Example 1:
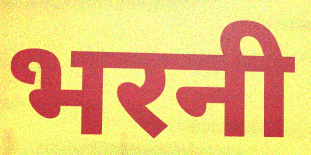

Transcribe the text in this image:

भरनी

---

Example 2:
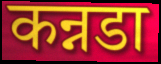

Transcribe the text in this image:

कन्नडा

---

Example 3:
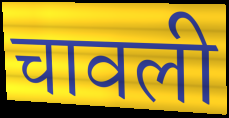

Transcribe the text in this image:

चावली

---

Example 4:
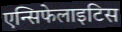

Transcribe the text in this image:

एन्सिफेलाइटिस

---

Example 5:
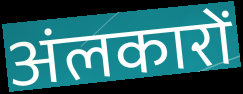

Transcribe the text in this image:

अंलकारों